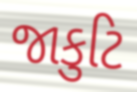
જાકુટિ